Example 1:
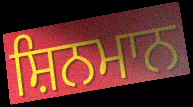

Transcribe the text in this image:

ਸ਼ਿਨਮਾਨ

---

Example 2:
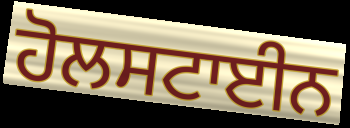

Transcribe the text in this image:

ਹੋਲਸਟਾਈਨ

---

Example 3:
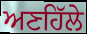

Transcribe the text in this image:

ਅਣਹਿੱਲੇ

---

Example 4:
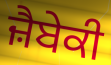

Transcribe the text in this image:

ਜ਼ੈਬੇਕੀ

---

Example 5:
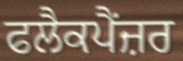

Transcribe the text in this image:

ਫਲੈਕਪੈਂਜ਼ਰ